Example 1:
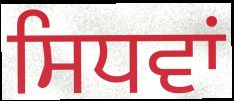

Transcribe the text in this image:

ਸਿਧਵਾਂ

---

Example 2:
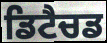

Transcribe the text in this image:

ਡਿਟੈਚਡ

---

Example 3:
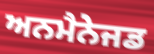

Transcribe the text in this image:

ਅਨਮੈਨੇਜਡ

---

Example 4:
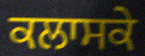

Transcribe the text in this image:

ਕਲਾਸਕੇ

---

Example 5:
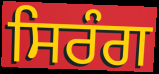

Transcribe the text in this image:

ਸਿਰੰਗ